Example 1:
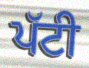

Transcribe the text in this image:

ਪੱਟੀ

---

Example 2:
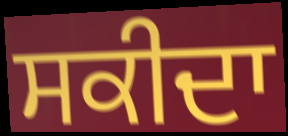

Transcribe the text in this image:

ਸਕੀਦਾ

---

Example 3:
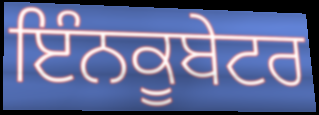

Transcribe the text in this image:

ਇੰਨਕੂਬੇਟਰ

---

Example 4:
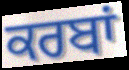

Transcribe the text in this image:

ਕਰਬਾਂ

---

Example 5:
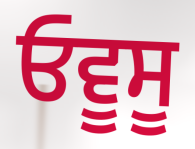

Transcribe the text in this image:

ਓਵੂਸੂ